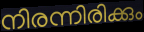
നിരന്നിരിക്കും